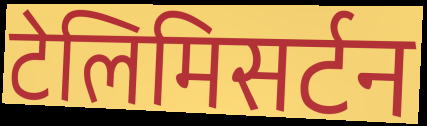
टेलिमिसर्टन